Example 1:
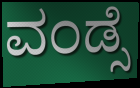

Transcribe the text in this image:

ವಂಡ್ಸೆ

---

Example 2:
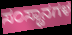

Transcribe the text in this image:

ಸಂಸ್ಥಾನಗಳ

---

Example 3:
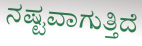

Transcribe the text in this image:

ನಷ್ಟವಾಗುತ್ತಿದೆ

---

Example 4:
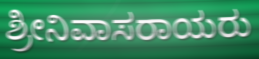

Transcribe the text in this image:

ಶ್ರೀನಿವಾಸರಾಯರು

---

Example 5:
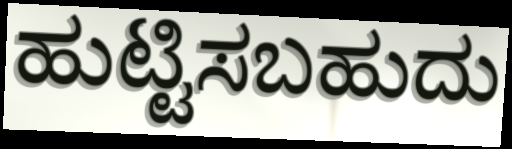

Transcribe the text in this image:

ಹುಟ್ಟಿಸಬಹುದು